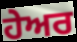
ਹੇਅਰ